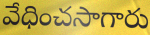
వేధించసాగారు